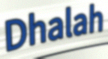
Dhalah